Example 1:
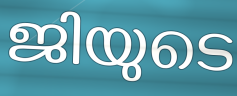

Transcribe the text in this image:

ജിയുടെ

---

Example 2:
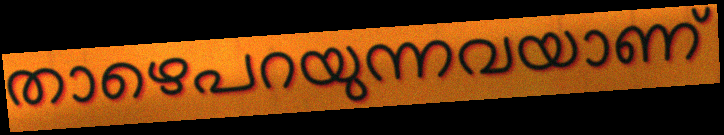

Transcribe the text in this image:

താഴെപറയുന്നവയാണ്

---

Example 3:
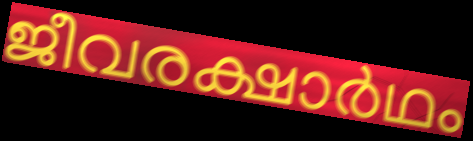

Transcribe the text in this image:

ജീവരക്ഷാർഥം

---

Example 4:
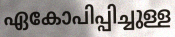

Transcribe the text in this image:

ഏകോപിപ്പിച്ചുള്ള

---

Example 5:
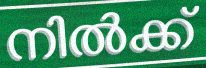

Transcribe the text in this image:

നിൽക്ക്